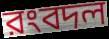
রংবদল